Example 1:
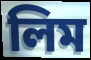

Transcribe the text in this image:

লিম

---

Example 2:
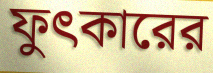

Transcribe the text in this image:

ফুৎকারের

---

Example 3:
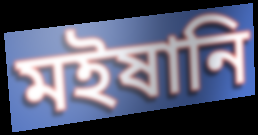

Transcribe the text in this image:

মইষানি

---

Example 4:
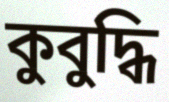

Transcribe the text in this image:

কুবুদ্ধি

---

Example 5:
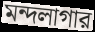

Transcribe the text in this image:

মন্দলাগার